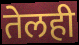
तेलही